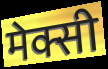
मेक्सी